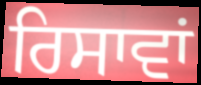
ਰਿਸਾਵਾਂ